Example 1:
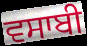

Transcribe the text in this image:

ਵਸਾਬੀ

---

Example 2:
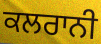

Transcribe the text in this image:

ਕਲਰਾਨੀ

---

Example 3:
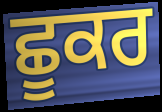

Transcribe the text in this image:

ਛੂਕਰ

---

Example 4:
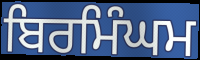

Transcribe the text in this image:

ਬਿਰਮਿੰਘਮ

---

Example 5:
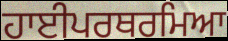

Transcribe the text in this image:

ਹਾਈਪਰਥਰਮਿਆ